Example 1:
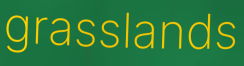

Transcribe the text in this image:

grasslands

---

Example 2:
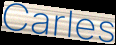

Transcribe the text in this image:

Carles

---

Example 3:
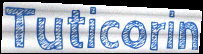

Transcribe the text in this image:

Tuticorin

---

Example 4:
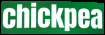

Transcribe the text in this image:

chickpea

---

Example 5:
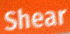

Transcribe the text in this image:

Shear